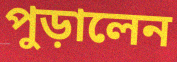
পুড়ালেন